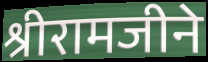
श्रीरामजीने